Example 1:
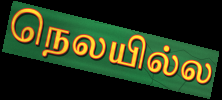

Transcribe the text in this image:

நெலயில்ல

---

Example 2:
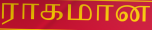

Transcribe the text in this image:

ராகமான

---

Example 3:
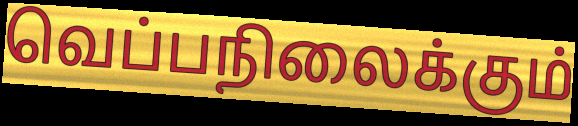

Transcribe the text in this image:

வெப்பநிலைக்கும்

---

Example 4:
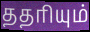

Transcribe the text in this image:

ததரியும்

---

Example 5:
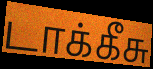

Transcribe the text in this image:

டாக்கீசு